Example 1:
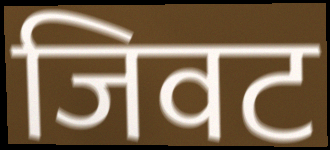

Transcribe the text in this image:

जिवट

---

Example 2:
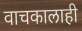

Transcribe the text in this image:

वाचकालाही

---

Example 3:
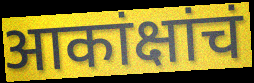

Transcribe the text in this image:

आकांक्षांचं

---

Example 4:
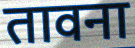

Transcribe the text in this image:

तावना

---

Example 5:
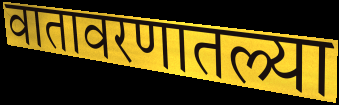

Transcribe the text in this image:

वातावरणातल्या